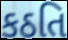
કઠતિ